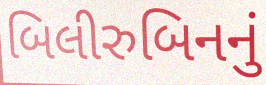
બિલીરુબિનનું